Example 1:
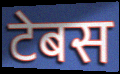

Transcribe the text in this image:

टेबस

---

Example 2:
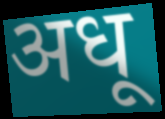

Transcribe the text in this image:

अधू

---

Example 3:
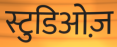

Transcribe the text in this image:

स्टुडिओज़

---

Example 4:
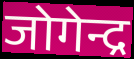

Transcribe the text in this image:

जोगेन्द्र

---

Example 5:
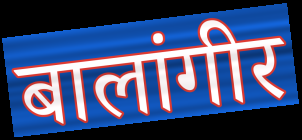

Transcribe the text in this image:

बालांगीर